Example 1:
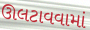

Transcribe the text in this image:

ઊલટાવવામાં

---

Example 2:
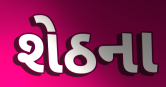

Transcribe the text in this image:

શેઠના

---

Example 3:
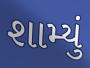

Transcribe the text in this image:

શામ્યું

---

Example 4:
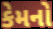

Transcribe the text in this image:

કેમનો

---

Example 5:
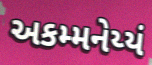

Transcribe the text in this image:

અકમ્મનેય્યં